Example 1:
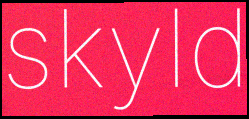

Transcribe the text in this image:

skyld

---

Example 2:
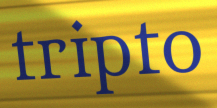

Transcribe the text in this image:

tripto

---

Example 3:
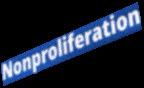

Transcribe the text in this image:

Nonproliferation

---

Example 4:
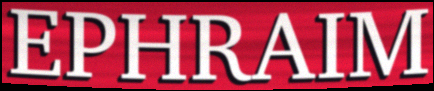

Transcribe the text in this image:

EPHRAIM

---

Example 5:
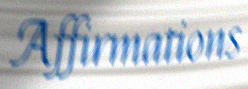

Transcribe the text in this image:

Affirmations